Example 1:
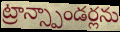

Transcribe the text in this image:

ట్రాన్స్పాండర్లను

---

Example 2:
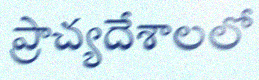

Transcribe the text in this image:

ప్రాచ్యదేశాలలో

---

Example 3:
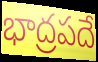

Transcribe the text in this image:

భాద్రపదే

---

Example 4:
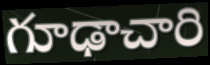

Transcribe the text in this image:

గూఢాచారి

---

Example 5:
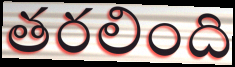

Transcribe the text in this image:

తరలింది